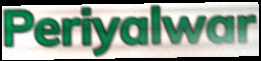
Periyalwar